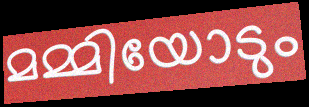
മമ്മിയോടും